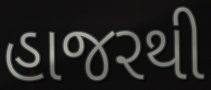
હાજરથી